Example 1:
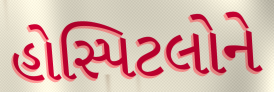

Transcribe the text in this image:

હોસ્પિટલોને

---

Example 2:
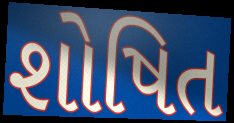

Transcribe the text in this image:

શોષિત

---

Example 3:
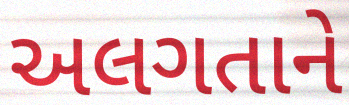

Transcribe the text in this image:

અલગતાને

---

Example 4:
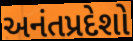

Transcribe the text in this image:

અનંતપ્રદેશો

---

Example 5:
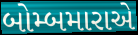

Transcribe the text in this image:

બોમ્બમારાએ